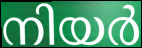
നിയർ